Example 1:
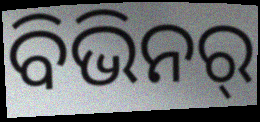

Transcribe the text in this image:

ବିଭିନର୍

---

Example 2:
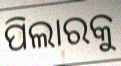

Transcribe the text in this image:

ପିଲାରକୁ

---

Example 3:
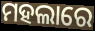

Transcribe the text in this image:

ମହଲାରେ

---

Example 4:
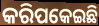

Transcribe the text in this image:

କରିପକେଇଛି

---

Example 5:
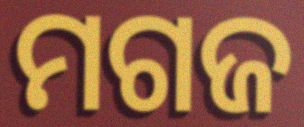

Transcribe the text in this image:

ମଗଜ